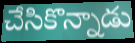
చేసికొన్నాడు